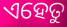
ଏହେତୁ